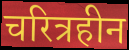
चरित्रहीन